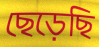
ছেড়েছি